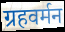
ग्रहवर्मन